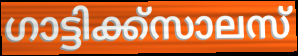
ഗാട്ടിക്ക്സാലസ്